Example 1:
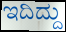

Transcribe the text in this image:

ಇದಿದ್ದು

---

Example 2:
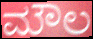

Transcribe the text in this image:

ಮೌಲ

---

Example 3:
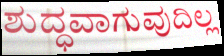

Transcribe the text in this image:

ಶುದ್ಧವಾಗುವುದಿಲ್ಲ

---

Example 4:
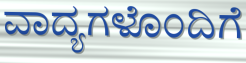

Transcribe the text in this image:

ವಾದ್ಯಗಳೊಂದಿಗೆ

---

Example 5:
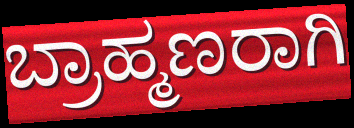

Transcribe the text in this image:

ಬ್ರಾಹ್ಮಣರಾಗಿ